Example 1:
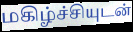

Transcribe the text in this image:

மகிழ்ச்சியுடன்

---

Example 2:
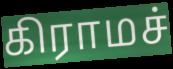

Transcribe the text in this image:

கிராமச்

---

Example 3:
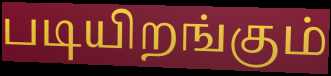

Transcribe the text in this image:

படியிறங்கும்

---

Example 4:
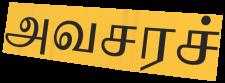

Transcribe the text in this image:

அவசரச்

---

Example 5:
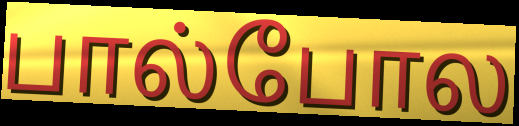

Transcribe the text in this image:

பால்போல